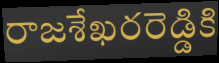
రాజశేఖరరెడ్డికి